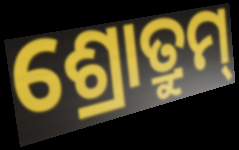
ଶ୍ରୋତ୍ରୁମ୍